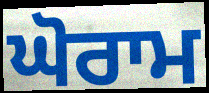
ਘੋਰਾਮ